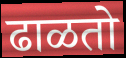
ढाळतो